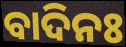
ବାଦିନଃ